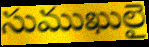
సుముఖులై